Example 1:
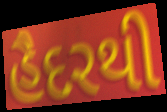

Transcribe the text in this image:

હૈદરથી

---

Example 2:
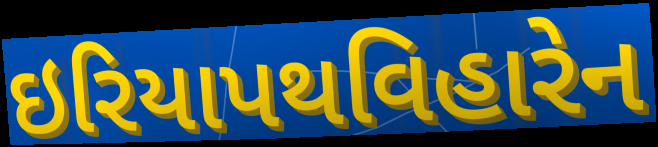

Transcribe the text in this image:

ઇરિયાપથવિહારેન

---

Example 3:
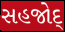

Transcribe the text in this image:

સહજોદ્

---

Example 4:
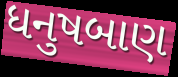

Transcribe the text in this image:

ધનુષબાણ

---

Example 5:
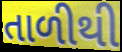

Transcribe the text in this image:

તાળીથી